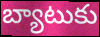
బ్యాటుకు